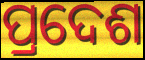
ପ୍ରଦେଶ